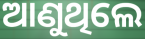
ଆଣୁଥିଲେ